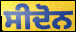
ਸੀਦੋਨ